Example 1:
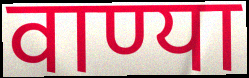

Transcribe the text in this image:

वाण्या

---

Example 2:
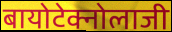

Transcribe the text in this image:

बायोटेक्नोलाजी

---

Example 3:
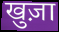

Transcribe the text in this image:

खुज़ा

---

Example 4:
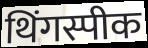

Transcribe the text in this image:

थिंगस्पीक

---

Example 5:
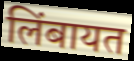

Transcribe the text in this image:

लिंबायत